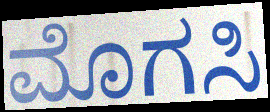
ಮೊಗಸಿ